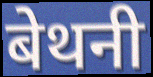
बेथनी